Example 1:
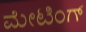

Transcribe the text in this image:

ಮೇಟಿಂಗ್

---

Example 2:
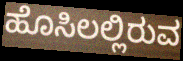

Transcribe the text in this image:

ಹೊಸಿಲಲ್ಲಿರುವ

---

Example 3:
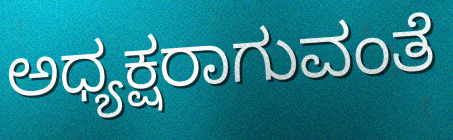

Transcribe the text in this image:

ಅಧ್ಯಕ್ಷರಾಗುವಂತೆ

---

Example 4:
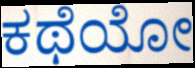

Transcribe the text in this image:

ಕಥೆಯೋ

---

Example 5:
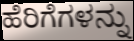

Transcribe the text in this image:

ಹೆರಿಗೆಗಳನ್ನು